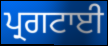
ਪ੍ਰਗਟਾਈ